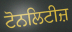
ਟੋਨਲਿਟੀਜ਼